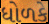
ધોળકે